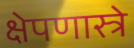
क्षेपणास्त्रे